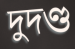
দুদণ্ড